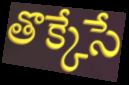
తొక్కేసే